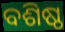
ବଶିଷ୍ଠ